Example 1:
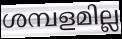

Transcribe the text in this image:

ശമ്പളമില്ല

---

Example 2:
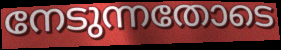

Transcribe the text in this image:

നേടുന്നതോടെ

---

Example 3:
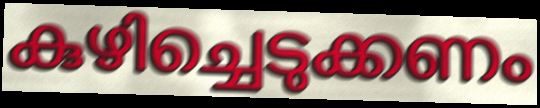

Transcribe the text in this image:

കുഴിച്ചെടുക്കണം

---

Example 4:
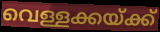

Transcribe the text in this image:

വെള്ളക്കയ്ക്ക്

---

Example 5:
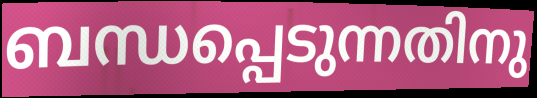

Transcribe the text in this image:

ബന്ധപ്പെടുന്നതിനു